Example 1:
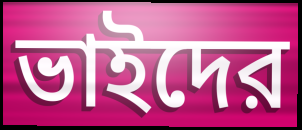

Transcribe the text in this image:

ভাইদের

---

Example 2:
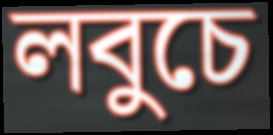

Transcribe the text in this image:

লবুচে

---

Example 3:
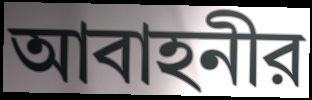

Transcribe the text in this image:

আবাহনীর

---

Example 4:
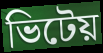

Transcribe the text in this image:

ভিটেয়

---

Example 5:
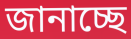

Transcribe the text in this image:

জানাচ্ছে